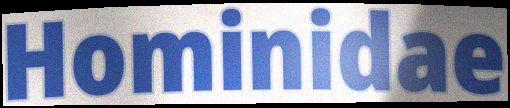
Hominidae